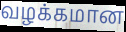
வழக்கமான